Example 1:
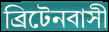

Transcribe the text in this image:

ব্রিটেনবাসী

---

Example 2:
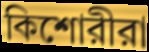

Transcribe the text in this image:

কিশোরীরা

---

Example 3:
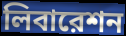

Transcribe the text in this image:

লিবারেশন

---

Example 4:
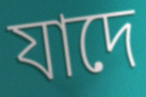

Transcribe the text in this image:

যাদে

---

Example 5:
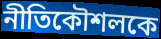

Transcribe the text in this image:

নীতিকৌশলকে